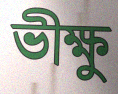
ভীক্ষু